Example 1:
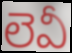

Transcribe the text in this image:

లెవీ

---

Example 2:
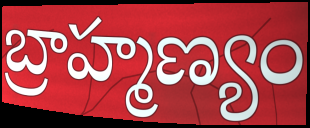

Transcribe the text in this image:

బ్రాహ్మణ్యం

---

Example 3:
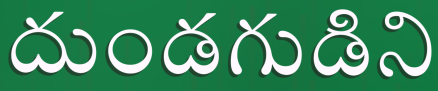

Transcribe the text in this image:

దుండగుడిని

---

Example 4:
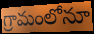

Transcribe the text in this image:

గ్రామంలోనూ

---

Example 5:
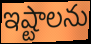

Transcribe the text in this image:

ఇష్టాలను